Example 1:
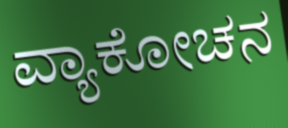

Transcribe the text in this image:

ವ್ಯಾಕೋಚನ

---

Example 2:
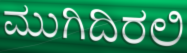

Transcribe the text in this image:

ಮುಗಿದಿರಲಿ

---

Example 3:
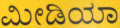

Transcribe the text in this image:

ಮೀಡಿಯಾ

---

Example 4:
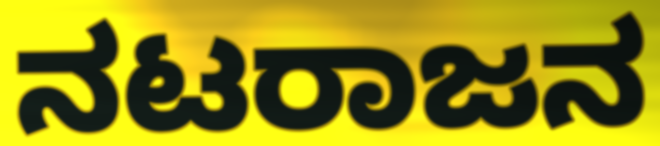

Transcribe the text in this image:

ನಟರಾಜನ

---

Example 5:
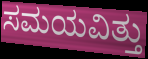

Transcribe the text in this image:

ಸಮಯವಿತ್ತು